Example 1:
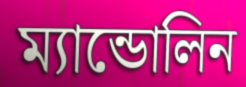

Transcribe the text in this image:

ম্যান্ডোলিন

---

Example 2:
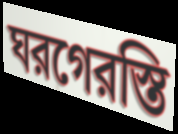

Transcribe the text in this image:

ঘরগেরস্তি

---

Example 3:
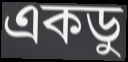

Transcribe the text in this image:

একডু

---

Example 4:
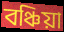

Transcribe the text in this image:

বঞ্চিয়া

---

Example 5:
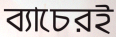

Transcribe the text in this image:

ব্যাচেরই